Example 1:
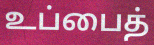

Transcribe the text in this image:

உப்பைத்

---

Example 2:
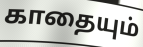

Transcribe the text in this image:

காதையும்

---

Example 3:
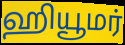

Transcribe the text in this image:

ஹியூமர்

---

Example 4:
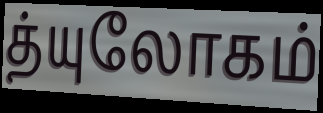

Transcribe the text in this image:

த்யுலோகம்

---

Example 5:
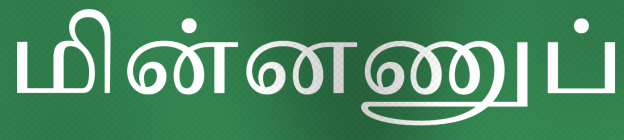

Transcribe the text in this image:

மின்னணுப்